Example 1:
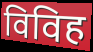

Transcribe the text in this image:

विविह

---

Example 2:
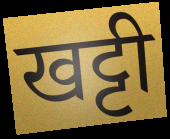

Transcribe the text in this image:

खट्टी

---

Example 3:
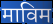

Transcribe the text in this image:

माविम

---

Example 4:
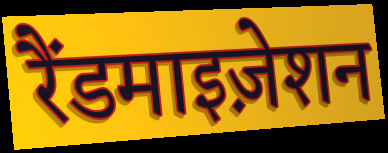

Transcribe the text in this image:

रैंडमाइज़ेशन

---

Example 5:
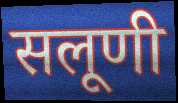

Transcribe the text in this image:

सलूणी